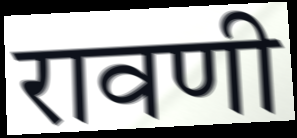
रावणी